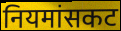
नियमांसकट